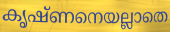
കൃഷ്ണനെയല്ലാതെ